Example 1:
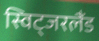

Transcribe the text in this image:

स्विट्जरलैंड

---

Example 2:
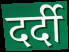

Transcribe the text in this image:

दर्दी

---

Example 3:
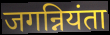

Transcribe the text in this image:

जगन्नियंता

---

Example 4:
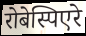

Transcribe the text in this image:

रोबेस्पिएरे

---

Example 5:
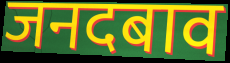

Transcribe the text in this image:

जनदबाव